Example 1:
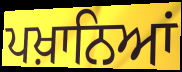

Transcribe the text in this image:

ਪਖ਼ਾਨਿਆਂ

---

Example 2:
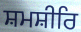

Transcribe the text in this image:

ਸ਼ਮਸ਼ੀਰਿ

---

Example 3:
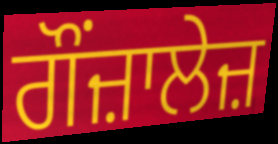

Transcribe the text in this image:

ਗੌਂਜ਼ਾਲੇਜ਼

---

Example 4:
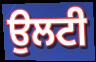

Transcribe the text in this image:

ਉਲਟੀ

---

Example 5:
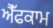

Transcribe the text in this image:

ਐੱਫਕਾਮ